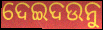
ଦେଇଦଉନୁ